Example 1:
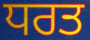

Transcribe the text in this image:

ਧਰਤ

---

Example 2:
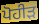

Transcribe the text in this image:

ਪੋਹੀੜ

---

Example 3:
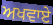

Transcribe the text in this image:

ਅਖਵਾਏ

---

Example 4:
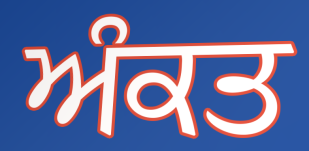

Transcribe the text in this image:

ਅੰਕਤ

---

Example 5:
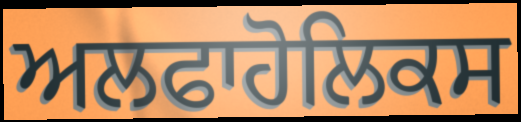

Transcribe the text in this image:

ਅਲਫਾਹੋਲਿਕਸ